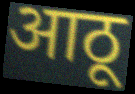
आठू